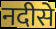
नदीसे